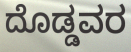
ದೊಡ್ಡವರ